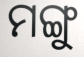
ମଙ୍ଗୁ